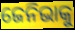
ଜେନିଭାକୁ